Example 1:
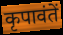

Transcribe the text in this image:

कृपावंतें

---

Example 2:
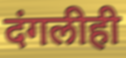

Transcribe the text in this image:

दंगलीही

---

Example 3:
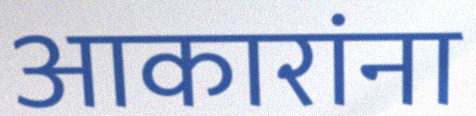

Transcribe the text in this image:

आकारांना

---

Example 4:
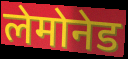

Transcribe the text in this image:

लेमोनेड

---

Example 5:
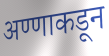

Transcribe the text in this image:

अण्णाकडून